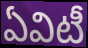
ఏవిటీ